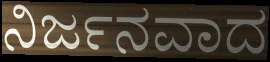
ನಿರ್ಜನವಾದ